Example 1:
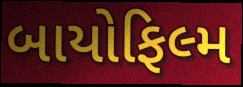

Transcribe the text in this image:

બાયોફિલ્મ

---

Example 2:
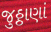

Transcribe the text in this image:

જુઠ્ઠાણાં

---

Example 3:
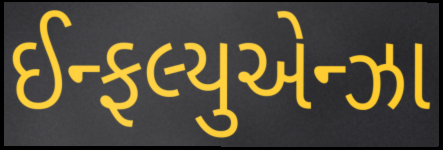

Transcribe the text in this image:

ઈન્ફલ્યુએન્ઝા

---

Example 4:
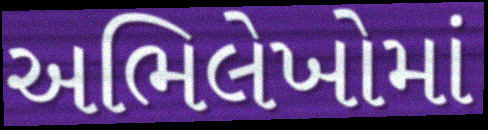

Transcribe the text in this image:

અભિલેખોમાં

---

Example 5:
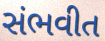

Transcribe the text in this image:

સંભવીત